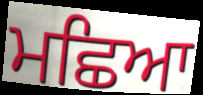
ਮਛਿਆ